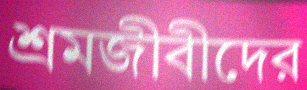
শ্রমজীবীদের